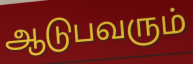
ஆடுபவரும்